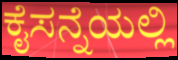
ಕೈಸನ್ನೆಯಲ್ಲಿ